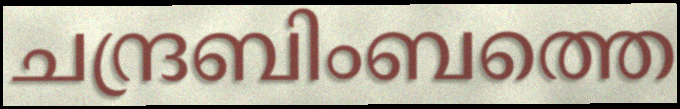
ചന്ദ്രബിംബത്തെ